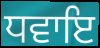
ਧਵਾਇ